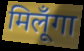
मिलूँगा